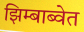
झिम्बाब्वेत